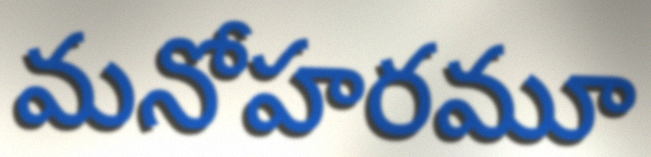
మనోహరమూ